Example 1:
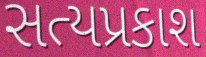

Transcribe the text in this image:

સત્યપ્રકાશ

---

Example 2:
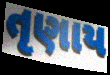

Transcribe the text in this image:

તૃણાય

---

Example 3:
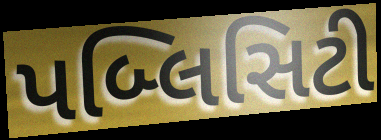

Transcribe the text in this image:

પબ્લિસિટી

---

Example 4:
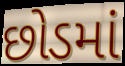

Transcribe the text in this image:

છોડમાં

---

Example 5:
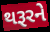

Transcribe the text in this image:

થરૂરને